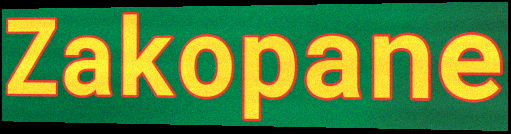
Zakopane